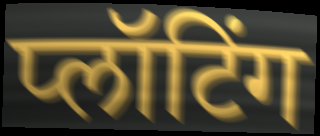
प्लॉटिंग